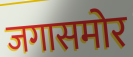
जगासमोर